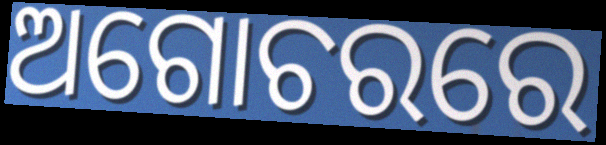
ଅଗୋଚରରେ